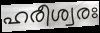
ഹരീശ്വരഃ